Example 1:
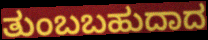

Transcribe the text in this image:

ತುಂಬಬಹುದಾದ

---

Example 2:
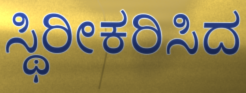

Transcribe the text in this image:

ಸ್ಥಿರೀಕರಿಸಿದ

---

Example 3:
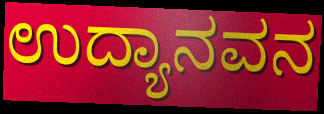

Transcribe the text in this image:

ಉದ್ಯಾನವನ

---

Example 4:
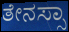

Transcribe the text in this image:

ತೇನಸ್ಸಾ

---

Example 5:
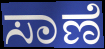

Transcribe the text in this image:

ಸಾಣೆ